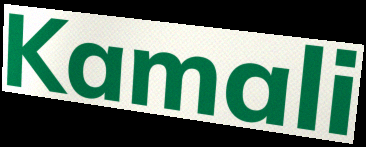
Kamali